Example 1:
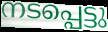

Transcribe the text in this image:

നടപ്പെട്ടു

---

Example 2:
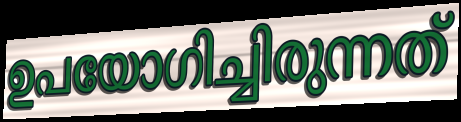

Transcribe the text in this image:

ഉപയോഗിച്ചിരുന്നത്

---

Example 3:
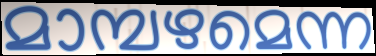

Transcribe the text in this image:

മാമ്പഴമെന്ന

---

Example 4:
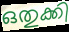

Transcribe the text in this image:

ഒതുക്കി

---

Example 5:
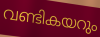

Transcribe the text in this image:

വണ്ടികയറും